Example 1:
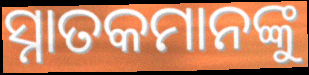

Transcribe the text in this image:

ସ୍ନାତକମାନଙ୍କୁ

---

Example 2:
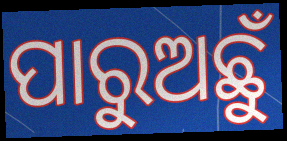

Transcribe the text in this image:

ପାରୁଅଛୁଁ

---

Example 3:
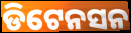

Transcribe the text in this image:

ଡିଟେନସନ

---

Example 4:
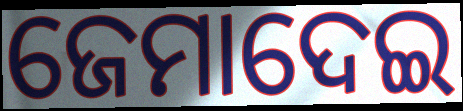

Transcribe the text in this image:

ଜେମାଦେଇ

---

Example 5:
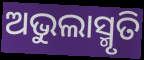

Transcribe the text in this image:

ଅଭୁଲାସ୍ମୃତି